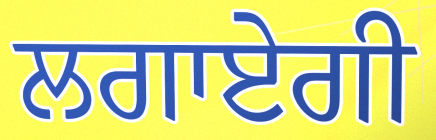
ਲਗਾਏਗੀ